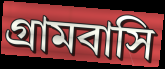
গ্রামবাসি